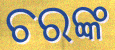
ଚରଙ୍କ